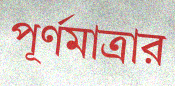
পূর্ণমাত্রার